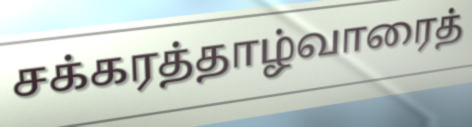
சக்கரத்தாழ்வாரைத்